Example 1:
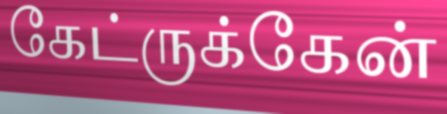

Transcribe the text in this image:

கேட்ருக்கேன்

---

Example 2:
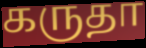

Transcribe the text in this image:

கருதா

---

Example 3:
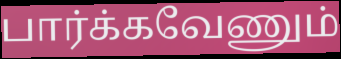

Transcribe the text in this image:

பார்க்கவேணும்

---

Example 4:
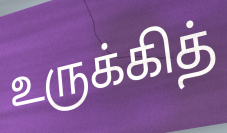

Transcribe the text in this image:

உருக்கித்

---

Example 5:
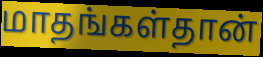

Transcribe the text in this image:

மாதங்கள்தான்